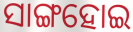
ସାଙ୍ଗହୋଇ